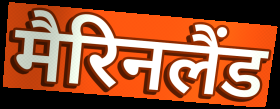
मैरिनलैंड